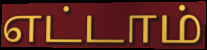
எட்டாம்